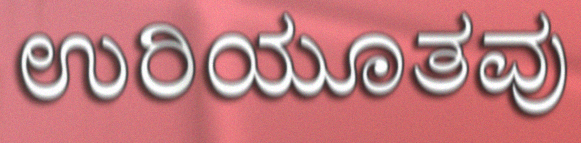
ಉರಿಯೂತವು